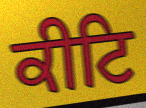
ਕੀਟਿ